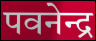
पवनेन्द्र